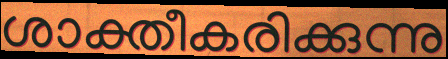
ശാക്തീകരിക്കുന്നു